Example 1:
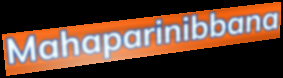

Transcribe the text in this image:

Mahaparinibbana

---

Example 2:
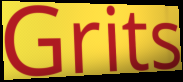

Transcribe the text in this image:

Grits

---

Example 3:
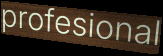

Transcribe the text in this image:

profesional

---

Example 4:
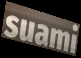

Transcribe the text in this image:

suami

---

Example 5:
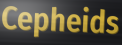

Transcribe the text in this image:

Cepheids